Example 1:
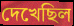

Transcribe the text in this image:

দেখেছিল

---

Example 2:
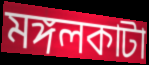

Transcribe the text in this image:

মঙ্গলকাটা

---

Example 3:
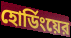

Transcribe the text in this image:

হোর্ডিংয়ের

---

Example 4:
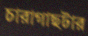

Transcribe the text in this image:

চারাগাছটার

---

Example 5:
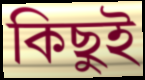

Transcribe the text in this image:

কিছুই